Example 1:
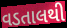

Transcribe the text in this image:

વડતાલથી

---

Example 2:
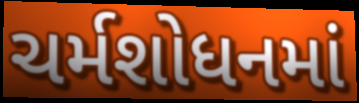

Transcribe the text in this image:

ચર્મશોધનમાં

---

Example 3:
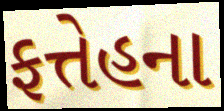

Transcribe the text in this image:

ફત્તેહના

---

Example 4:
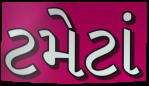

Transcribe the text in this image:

ટમેટાં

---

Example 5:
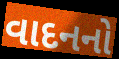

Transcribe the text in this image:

વાદનનો